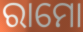
ରାମୋ